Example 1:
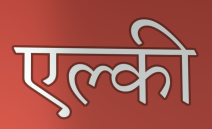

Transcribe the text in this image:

एल्की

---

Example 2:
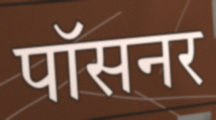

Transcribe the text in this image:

पॉसनर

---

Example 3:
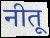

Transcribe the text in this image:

नीतू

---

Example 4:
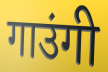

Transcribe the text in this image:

गाउंगी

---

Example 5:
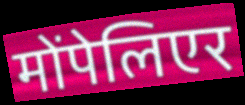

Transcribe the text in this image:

मोंपेलिएर